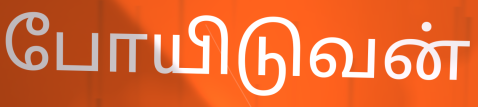
போயிடுவன்